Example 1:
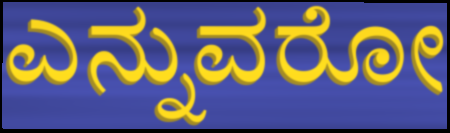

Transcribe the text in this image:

ಎನ್ನುವರೋ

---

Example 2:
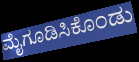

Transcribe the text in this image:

ಮೈಗೂಡಿಸಿಕೊಂಡು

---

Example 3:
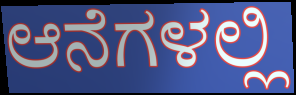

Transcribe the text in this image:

ಆನೆಗಳಲ್ಲಿ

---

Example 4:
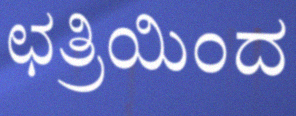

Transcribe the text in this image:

ಛತ್ರಿಯಿಂದ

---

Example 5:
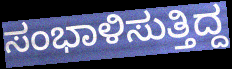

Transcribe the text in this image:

ಸಂಭಾಳಿಸುತ್ತಿದ್ದ